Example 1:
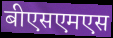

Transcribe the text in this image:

बीएसएमएस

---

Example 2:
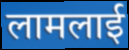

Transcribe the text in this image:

लामलाई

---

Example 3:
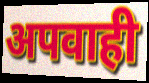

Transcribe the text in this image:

अपवाही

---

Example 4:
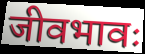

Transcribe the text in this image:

जीवभावः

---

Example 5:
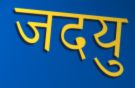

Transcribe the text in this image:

जदयु